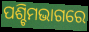
ପଶ୍ଚିମଭାଗରେ